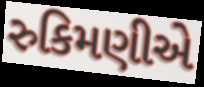
રુકિમણીએ